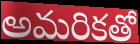
అమరికతో